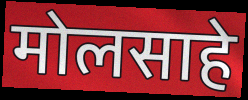
मोलसाहे